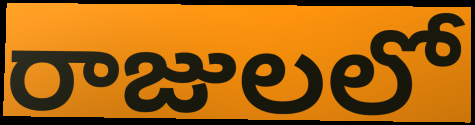
రాజులలో